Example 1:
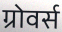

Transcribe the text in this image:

ग्रोवर्स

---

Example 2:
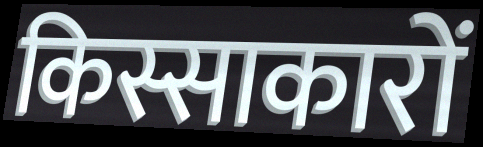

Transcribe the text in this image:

किस्साकारों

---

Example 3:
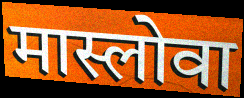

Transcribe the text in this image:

मास्लोवा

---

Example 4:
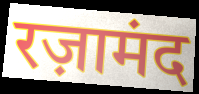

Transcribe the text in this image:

रज़ामंद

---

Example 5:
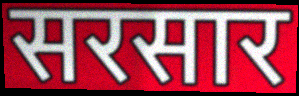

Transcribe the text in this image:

सरसार